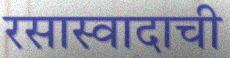
रसास्वादाची